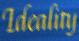
Ideality